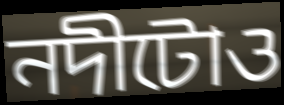
নদীটোও